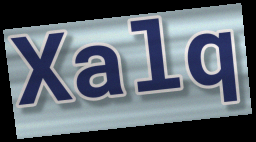
Xalq